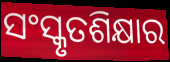
ସଂସ୍କୃତଶିକ୍ଷାର